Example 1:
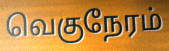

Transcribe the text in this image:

வெகுநேரம்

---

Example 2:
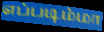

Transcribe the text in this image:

எப்படிம்மா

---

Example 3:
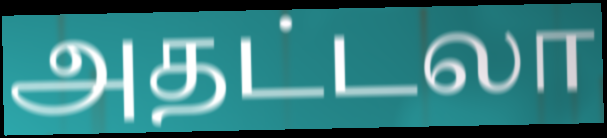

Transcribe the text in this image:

அதட்டலா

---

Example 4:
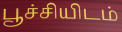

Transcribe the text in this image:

பூச்சியிடம்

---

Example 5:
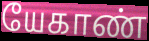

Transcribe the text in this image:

யேகாண்